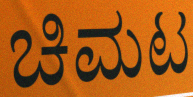
ಚಿಮಟ